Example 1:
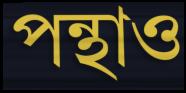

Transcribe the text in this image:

পন্থাও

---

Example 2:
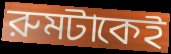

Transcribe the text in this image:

রুমটাকেই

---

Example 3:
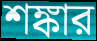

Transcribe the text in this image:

শঙ্কার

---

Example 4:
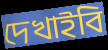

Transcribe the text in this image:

দেখাইবি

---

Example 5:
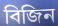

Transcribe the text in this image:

বিজিন